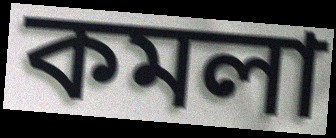
কমলা